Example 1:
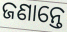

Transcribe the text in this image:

ଜଣାନ୍ତେ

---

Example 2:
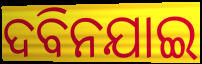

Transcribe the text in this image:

ଦବିନଯାଇ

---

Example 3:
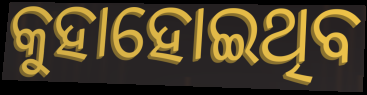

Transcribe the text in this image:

କୁହାହୋଇଥିବ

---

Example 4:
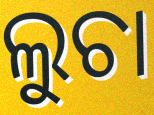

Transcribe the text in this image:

ଲୁଚା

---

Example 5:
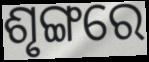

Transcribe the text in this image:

ଶୃଙ୍ଗରେ